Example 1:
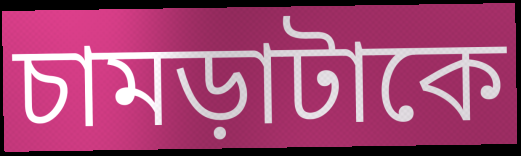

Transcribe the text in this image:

চামড়াটাকে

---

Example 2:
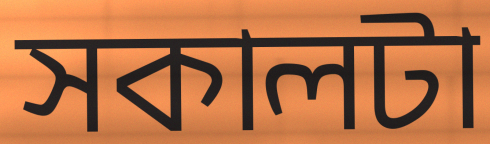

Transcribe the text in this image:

সকালটা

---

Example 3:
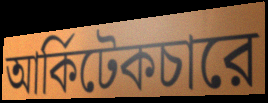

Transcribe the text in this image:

আর্কিটেকচারে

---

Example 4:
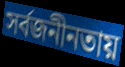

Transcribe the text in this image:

সর্বজনীনতায়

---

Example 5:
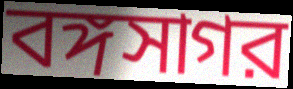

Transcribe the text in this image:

বঙ্গসাগর